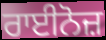
ਰਾਈਨੋਜ਼